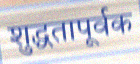
शुद्धतापूर्वक